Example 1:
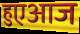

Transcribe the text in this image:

हुएआज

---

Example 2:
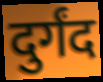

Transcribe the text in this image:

दुर्गंद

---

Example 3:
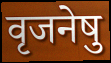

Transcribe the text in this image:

वृजनेषु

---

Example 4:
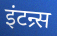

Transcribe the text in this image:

इंटन्र्स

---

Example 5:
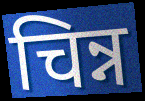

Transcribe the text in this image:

चिन्न